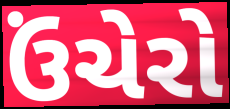
ઉંચેરો